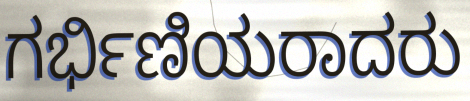
ಗರ್ಭಿಣಿಯರಾದರು